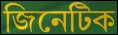
জিনেটিক